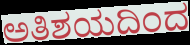
ಅತಿಶಯದಿಂದ